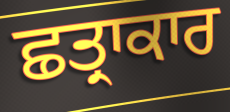
ਛਤ੍ਰਾਕਾਰ